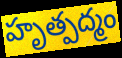
హృత్పద్మం